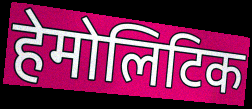
हेमोलिटिक